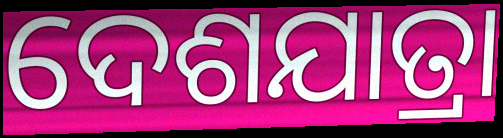
ଦେଶଯାତ୍ରା